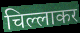
चिल्लाकर